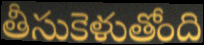
తీసుకెళుతోంది